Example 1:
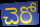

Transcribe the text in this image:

చెరో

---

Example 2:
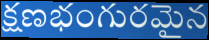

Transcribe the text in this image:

క్షణభంగురమైన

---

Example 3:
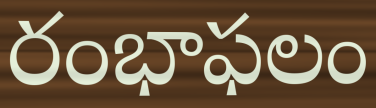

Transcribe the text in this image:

రంభాఫలం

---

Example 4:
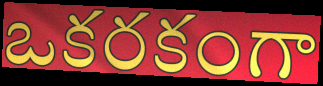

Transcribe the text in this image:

ఒకరకంగా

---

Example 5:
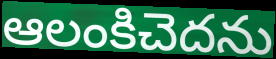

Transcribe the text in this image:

ఆలంకిచెదను